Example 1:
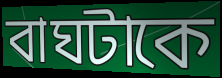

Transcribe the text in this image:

বাঘটাকে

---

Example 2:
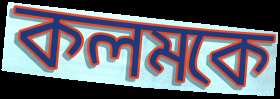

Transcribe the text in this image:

কলমকে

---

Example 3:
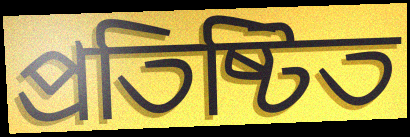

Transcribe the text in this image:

প্রতিষ্টিত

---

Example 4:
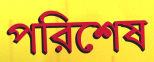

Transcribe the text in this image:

পরিশেষ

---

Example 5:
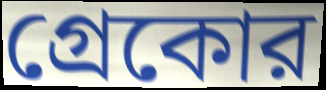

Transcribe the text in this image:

গ্রেকোর